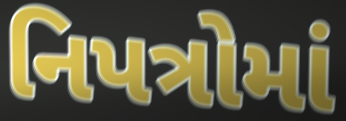
નિપત્રોમાં